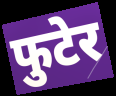
फुटेर